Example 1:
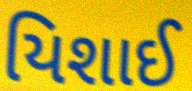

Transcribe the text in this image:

યિશાઈ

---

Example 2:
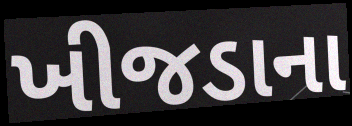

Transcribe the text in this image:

ખીજડાના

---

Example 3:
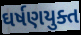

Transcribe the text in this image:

ઘર્ષણયુક્ત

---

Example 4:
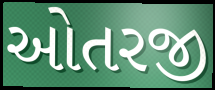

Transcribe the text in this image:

ઓતરજી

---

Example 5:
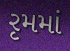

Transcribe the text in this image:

રૃમમાં